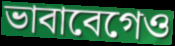
ভাবাবেগেও